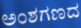
ಅಂಶಗಣದ